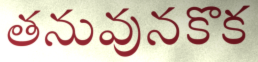
తనువునకొక